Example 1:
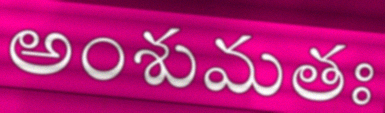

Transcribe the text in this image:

అంశుమతః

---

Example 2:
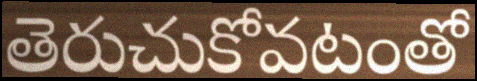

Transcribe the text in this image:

తెరుచుకోవటంతో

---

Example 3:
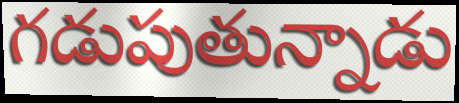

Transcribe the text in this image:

గడుపుతున్నాడు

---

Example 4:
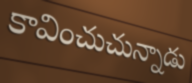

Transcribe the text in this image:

కావించుచున్నాడు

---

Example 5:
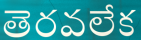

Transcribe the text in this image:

తెరవలేక